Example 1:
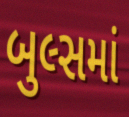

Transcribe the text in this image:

બુલ્સમાં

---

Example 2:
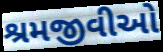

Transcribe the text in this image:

શ્રમજીવીઓ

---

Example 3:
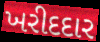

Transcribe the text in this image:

ખરીદદાર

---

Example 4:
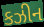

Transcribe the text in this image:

કઝીન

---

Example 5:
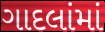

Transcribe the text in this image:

ગાદલાંમાં